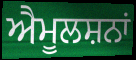
ਐਮੂਲਸ਼ਨਾਂ